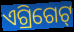
ଏଗ୍ରିଗେଟ୍